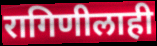
रागिणीलाही